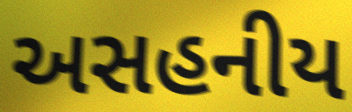
અસહનીય